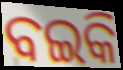
ବଇକି